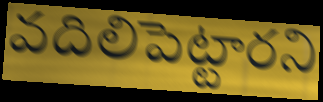
వదిలిపెట్టారని